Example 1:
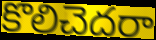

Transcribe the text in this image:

కొలిచెదరా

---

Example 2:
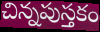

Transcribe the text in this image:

చిన్నపుస్తకం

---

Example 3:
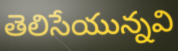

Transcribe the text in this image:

తెలిసేయున్నవి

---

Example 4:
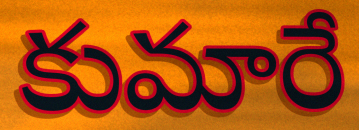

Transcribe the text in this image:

కుమారే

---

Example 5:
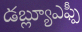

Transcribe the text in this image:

డబ్ల్యూఎఫ్పీ